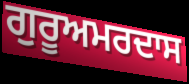
ਗੁਰੂਅਮਰਦਾਸ